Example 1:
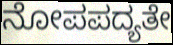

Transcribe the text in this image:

ನೋಪಪದ್ಯತೇ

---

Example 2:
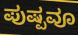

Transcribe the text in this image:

ಪುಷ್ಪವೂ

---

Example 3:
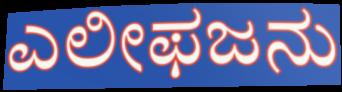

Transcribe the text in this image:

ಎಲೀಫಜನು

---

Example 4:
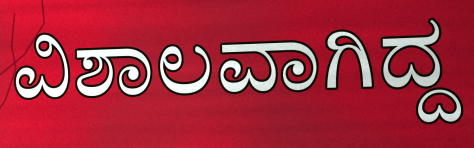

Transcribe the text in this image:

ವಿಶಾಲವಾಗಿದ್ದ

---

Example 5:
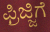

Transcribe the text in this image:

ಫ್ರಿಜ್ಜಿಗೆ